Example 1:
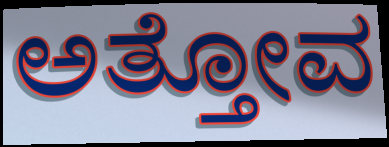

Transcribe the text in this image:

ಅತ್ತೋವ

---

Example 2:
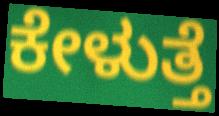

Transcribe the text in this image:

ಕೇಳುತ್ತೆ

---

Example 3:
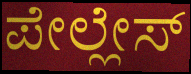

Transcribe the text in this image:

ಪೇಲ್ಲೇಸ್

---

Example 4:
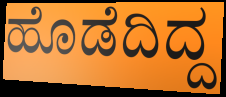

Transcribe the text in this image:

ಹೊಡೆದಿದ್ದ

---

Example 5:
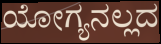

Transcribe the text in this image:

ಯೋಗ್ಯನಲ್ಲದ